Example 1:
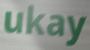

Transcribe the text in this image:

ukay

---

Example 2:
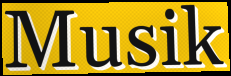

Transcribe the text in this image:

Musik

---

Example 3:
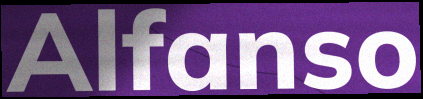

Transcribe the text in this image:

Alfanso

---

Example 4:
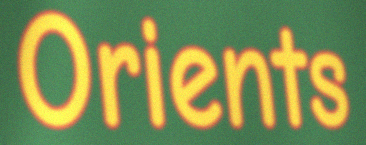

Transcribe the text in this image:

Orients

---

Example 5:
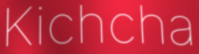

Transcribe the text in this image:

Kichcha